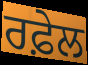
ਰਫ਼ੇਲ